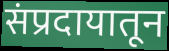
संप्रदायातून